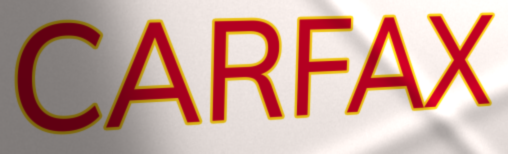
CARFAX